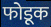
फोडूक